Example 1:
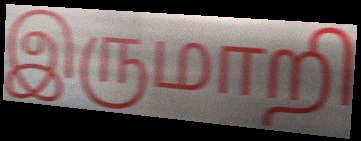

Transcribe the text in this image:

இருமாறி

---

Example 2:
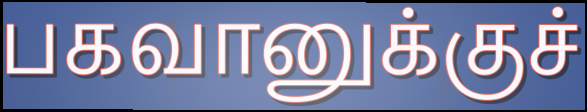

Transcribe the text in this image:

பகவானுக்குச்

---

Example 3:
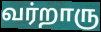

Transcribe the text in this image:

வர்றாரு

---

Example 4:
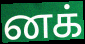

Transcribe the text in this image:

னக்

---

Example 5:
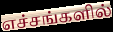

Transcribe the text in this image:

எச்சங்களில்